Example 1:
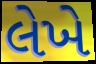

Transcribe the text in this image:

લેખે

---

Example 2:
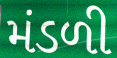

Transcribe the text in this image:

મંડળી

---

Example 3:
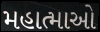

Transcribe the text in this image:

મહાત્માઓ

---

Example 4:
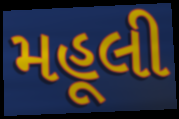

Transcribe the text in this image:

મહૂલી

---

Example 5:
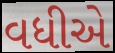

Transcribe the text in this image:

વધીએ